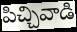
పిచ్చివాడి